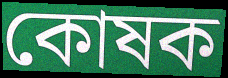
কোষক